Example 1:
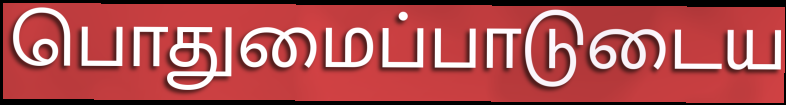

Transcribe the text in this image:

பொதுமைப்பாடுடைய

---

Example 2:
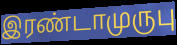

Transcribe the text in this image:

இரண்டாமுருபு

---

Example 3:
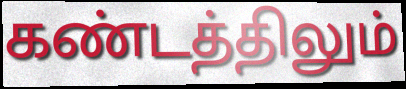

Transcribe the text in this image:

கண்டத்திலும்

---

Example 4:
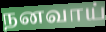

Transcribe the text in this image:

நனவாய்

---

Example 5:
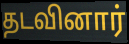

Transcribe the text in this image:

தடவினார்